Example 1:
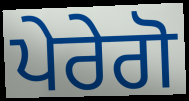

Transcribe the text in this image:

ਪੇਰੇਗੋ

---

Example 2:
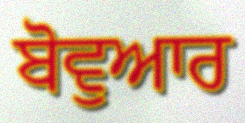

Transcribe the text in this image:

ਬੋਵੁਆਰ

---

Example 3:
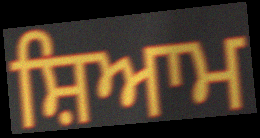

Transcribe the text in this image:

ਸ਼ਿਆਮ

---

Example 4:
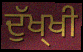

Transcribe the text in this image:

ਦੁੱਖ੍ਖੀ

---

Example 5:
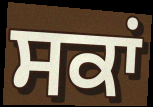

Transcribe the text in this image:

ਸਕਾਂ